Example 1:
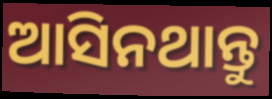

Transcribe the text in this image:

ଆସିନଥାନ୍ତୁ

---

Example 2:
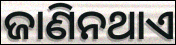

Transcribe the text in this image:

ଜାଣିନଥାଏ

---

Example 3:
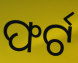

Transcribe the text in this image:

ଫର୍ଟ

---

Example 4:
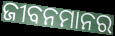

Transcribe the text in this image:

ଜୀବନମାନର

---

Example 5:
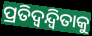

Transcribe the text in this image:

ପ୍ରତିଦ୍ୱନ୍ଦ୍ୱିତାକୁ